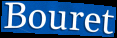
Bouret